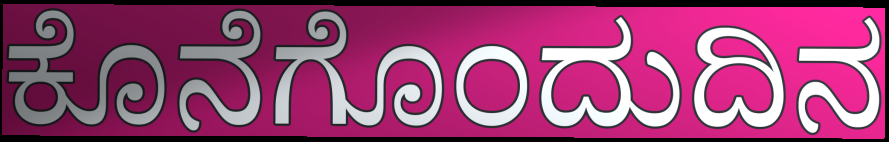
ಕೊನೆಗೊಂದುದಿನ